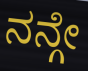
ನನ್ಗೇ